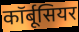
कॉर्बूसियर